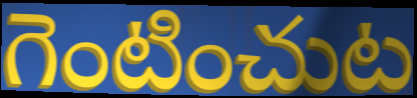
గెంటించుట